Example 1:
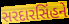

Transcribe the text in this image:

સરદારસિંહને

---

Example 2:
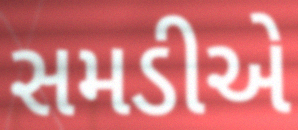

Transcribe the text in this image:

સમડીએ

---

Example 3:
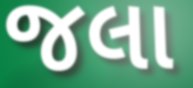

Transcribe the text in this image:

જલા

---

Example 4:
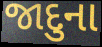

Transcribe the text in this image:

જાદુના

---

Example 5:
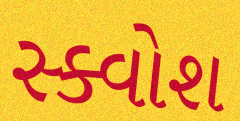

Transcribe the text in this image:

સ્ક્વોશ